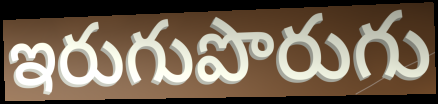
ఇరుగుపొరుగు